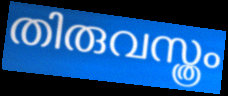
തിരുവസ്ത്രം